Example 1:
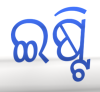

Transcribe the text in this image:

ଇଷ୍ଟି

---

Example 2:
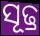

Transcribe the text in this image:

ସୂଢ୍ର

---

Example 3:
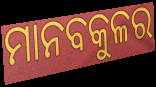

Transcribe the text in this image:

ମାନବକୁଳର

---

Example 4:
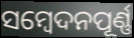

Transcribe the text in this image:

ସମ୍ବେଦନପୂର୍ଣ୍ଣ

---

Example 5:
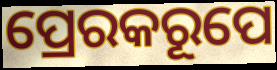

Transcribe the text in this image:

ପ୍ରେରକରୂପେ